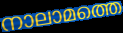
നാലാമത്തെ